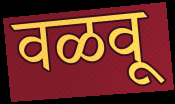
वळवू